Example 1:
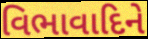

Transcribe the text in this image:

વિભાવાદિને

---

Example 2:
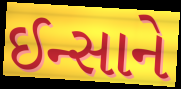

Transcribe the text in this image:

ઈન્સાને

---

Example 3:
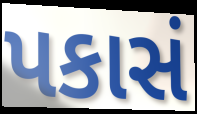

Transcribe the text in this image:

પકાસં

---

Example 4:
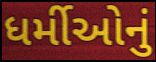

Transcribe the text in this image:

ધર્મીઓનું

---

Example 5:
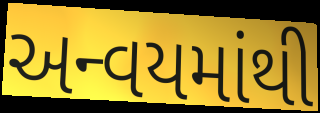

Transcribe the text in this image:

અન્વયમાંથી